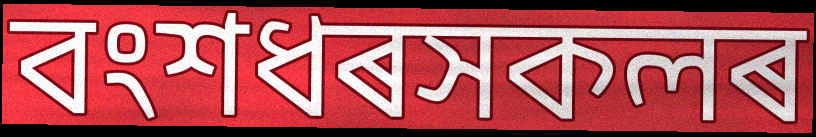
বংশধৰসকলৰ